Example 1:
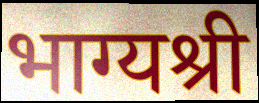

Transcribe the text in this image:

भाग्यश्री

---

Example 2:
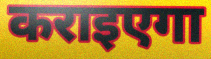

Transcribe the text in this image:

कराइएगा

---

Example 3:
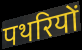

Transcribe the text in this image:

पथरियों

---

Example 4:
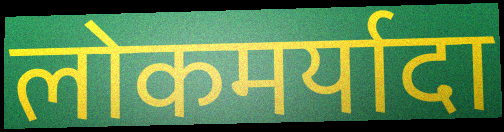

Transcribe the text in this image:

लोकमर्यादा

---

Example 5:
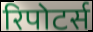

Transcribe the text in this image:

रिपोटर्स